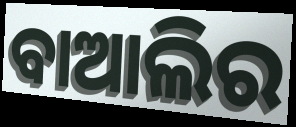
ବାଆଲିର